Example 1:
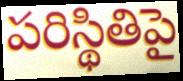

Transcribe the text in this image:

పరిస్థితిపై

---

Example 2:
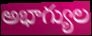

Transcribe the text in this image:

అభాగ్యుల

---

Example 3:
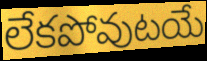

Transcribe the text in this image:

లేకపోవుటయే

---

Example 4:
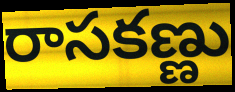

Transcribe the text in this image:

రాసకణ్ణు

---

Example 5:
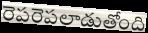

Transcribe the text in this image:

రెపరెపలాడుతోంది